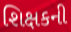
શિક્ષકની